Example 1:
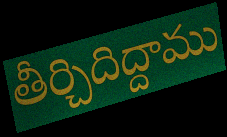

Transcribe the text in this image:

తీర్చిదిద్దాము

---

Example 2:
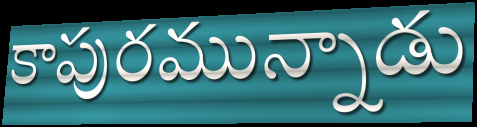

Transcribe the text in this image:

కాపురమున్నాడు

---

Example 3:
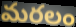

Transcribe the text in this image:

మరలం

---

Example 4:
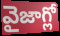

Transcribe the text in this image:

వైజాగ్లో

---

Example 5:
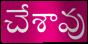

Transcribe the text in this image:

చేశావు